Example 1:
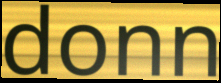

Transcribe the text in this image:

donn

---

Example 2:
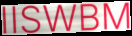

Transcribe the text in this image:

IISWBM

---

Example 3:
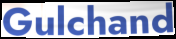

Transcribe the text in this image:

Gulchand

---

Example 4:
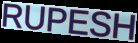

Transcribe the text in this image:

RUPESH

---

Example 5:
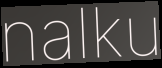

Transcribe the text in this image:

nalku